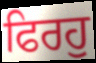
ਫਿਰਹੁ